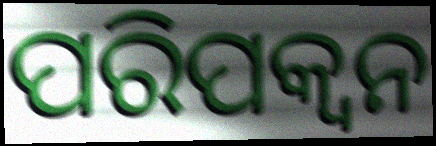
ପରିପକ୍ବନ